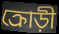
ক্রোড়ী